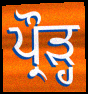
ਪ੍ਰੌੜ੍ਹ